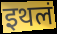
इथलं